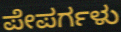
ಪೇಪರ್ಗಳು